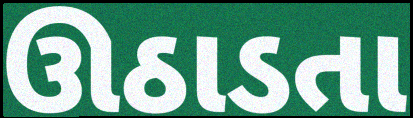
ઊઠાડતા